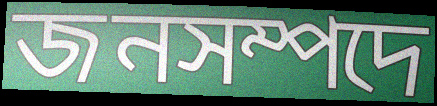
জনসম্পদে